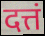
दत्तं